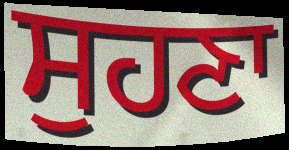
ਸੁਹਣਾ